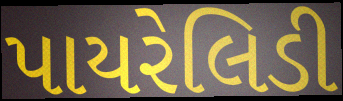
પાયરેલિડી